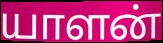
யாளன்